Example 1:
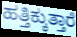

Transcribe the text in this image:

ಹತ್ತಿಕ್ಕುತ್ತಾರೆ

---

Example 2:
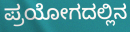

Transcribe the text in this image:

ಪ್ರಯೋಗದಲ್ಲಿನ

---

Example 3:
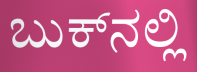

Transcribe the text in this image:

ಬುಕ್‌ನಲ್ಲಿ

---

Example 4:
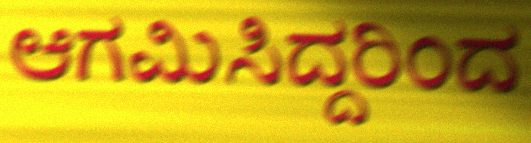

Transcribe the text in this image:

ಆಗಮಿಸಿದ್ದರಿಂದ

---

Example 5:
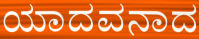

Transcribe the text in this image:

ಯಾದವನಾದ